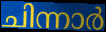
ചിന്നാർ